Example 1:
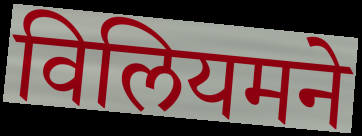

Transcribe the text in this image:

विलियमने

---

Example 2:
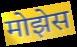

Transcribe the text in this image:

मोझेस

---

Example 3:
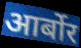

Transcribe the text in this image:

आर्बोर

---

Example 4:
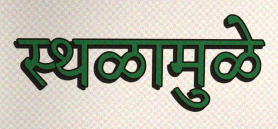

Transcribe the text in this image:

स्थळामुळे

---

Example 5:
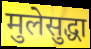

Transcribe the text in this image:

मुलेसुद्धा